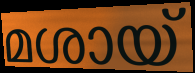
മശായ്